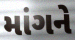
માંગને